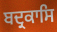
ਬਦ੍ਰਕਾਸਿ